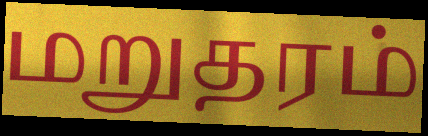
மறுதரம்